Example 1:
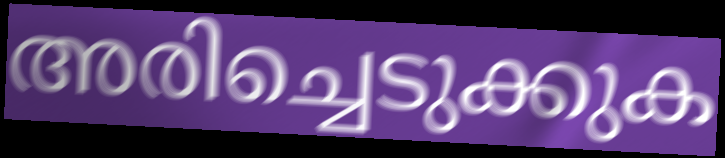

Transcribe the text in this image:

അരിച്ചെടുക്കുക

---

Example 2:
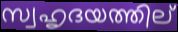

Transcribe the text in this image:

സ്വഹൃദയത്തില്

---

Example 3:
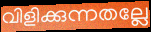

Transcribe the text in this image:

വിളിക്കുന്നതല്ലേ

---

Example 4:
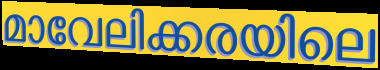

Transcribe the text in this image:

മാവേലിക്കരയിലെ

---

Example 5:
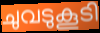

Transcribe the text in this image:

ചുവടുകൂടി